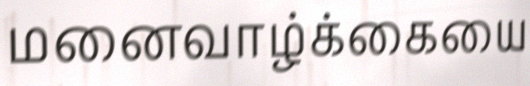
மனைவாழ்க்கையை